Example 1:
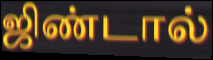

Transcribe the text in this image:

ஜிண்டால்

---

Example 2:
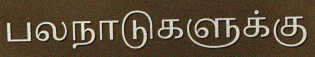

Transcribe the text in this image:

பலநாடுகளுக்கு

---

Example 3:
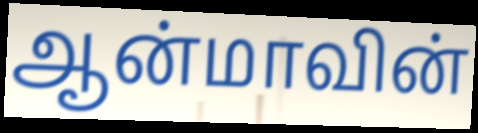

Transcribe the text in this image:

ஆன்மாவின்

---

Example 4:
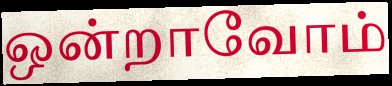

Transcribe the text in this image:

ஒன்றாவோம்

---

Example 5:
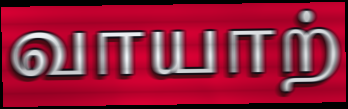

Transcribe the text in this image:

வாயாற்